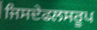
ਜਿਸਦੇਫਲਸਰੂਪ